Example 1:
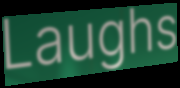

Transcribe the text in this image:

Laughs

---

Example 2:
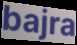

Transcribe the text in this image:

bajra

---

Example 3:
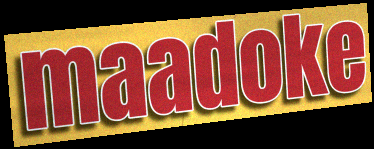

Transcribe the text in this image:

maadoke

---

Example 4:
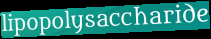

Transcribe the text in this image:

lipopolysaccharide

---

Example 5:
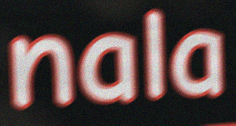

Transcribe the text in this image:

nala